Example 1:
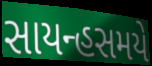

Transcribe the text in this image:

સાયન્હસમયે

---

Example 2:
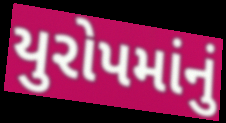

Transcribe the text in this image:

યુરોપમાંનું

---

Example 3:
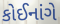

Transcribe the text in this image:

કોઈનાંગે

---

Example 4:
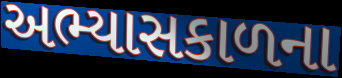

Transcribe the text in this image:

અભ્યાસકાળના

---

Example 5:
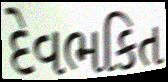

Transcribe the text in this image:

દેવભકિત